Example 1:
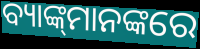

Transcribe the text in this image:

ବ୍ୟାଙ୍କ୍‌ମାନଙ୍କରେ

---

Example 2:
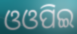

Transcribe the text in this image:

ଓଓପିଇ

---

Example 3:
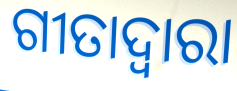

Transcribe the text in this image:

ଗୀତାଦ୍ଵାରା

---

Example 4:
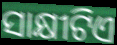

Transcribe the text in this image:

ସାକ୍ଷୀଟିଏ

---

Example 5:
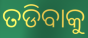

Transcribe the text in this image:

ତଡିବାକୁ